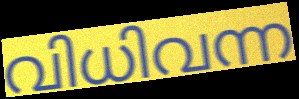
വിധിവന്ന